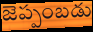
జెప్పంబడు